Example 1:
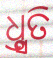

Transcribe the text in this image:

ଧ୍ତ୍ସତି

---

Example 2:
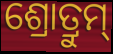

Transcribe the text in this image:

ଶ୍ରୋତ୍ରୁମ୍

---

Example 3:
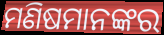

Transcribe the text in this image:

ମଣିଷମାନଙ୍କର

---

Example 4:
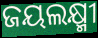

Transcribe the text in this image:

ଜୟଲକ୍ଷ୍ମୀ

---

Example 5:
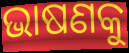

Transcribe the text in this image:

ଭାଷଣକୁ